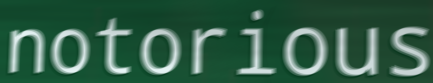
notorious